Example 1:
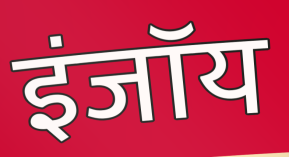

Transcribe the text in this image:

इंजॉय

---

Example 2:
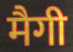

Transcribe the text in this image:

मैगी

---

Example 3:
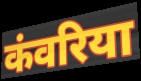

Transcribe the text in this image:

कंवरिया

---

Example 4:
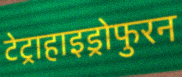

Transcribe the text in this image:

टेट्राहाइड्रोफुरन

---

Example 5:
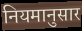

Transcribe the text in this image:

नियमानुसार